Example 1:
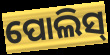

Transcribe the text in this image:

ପୋଲିସ୍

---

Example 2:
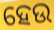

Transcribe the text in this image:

ହେଉ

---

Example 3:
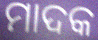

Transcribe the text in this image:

ମାଦକ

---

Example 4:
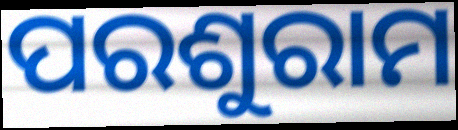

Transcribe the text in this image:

ପରଶୁରାମ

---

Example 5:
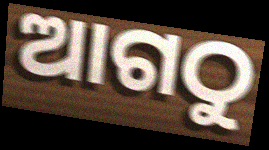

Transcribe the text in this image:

ଆଗଠୁ